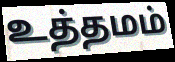
உத்தமம்